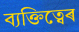
ব্যক্তিত্বেৰ